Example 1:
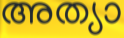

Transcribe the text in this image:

അത്യാ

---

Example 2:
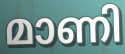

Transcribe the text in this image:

മാണി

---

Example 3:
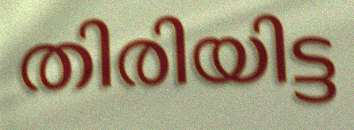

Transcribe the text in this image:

തിരിയിട്ട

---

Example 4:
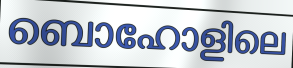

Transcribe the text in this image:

ബൊഹോളിലെ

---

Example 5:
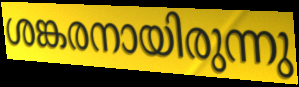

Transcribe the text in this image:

ശങ്കരനായിരുന്നു